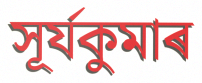
সূৰ্যকুমাৰ